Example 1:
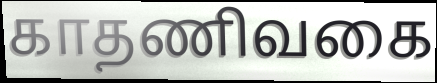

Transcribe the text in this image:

காதணிவகை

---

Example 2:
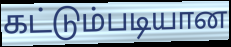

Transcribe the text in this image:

கட்டும்படியான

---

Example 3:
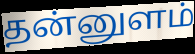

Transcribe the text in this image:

தன்னுளம்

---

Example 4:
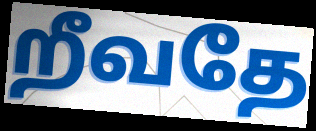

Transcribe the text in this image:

றீவதே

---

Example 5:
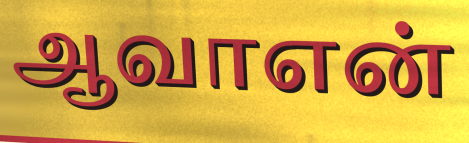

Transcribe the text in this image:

ஆவாஎன்